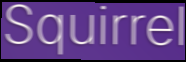
Squirrel